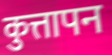
कुत्तापन